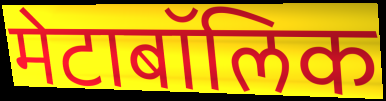
मेटाबॉलिक